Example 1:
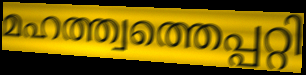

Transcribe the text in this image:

മഹത്ത്വത്തെപ്പറ്റി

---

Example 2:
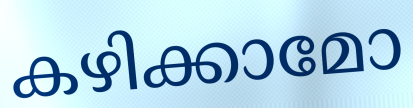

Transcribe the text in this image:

കഴിക്കാമോ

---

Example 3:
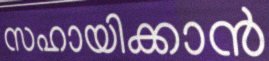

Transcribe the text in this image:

സഹായിക്കാൻ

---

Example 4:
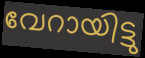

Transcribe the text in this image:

വേറായിട്ടു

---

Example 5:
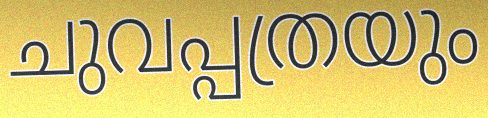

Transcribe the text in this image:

ചുവപ്പത്രയും